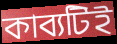
কাব্যটিই